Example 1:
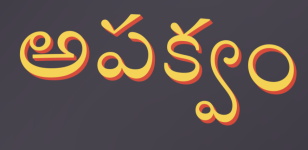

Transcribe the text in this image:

అపక్వం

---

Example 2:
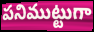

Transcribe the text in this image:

పనిముట్టుగా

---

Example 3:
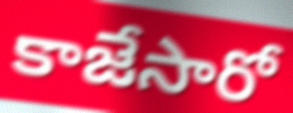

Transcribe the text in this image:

కాజేసారో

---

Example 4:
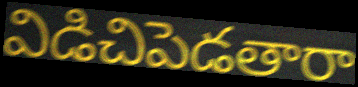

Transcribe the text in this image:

విడిచిపెడతారా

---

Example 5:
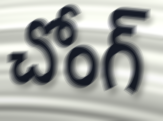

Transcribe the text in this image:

చోంగ్